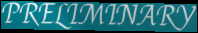
PRELIMINARY